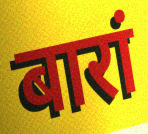
बारां